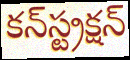
కన్‍స్ట్రక్షన్